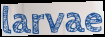
larvae